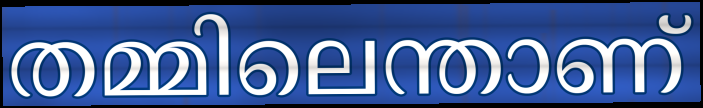
തമ്മിലെന്താണ്